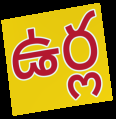
ఉర్ల